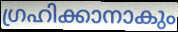
ഗ്രഹിക്കാനാകും